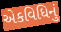
એકવિધિનું